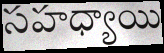
సహధ్యాయి